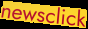
newsclick